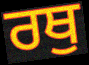
ਰਥੁ